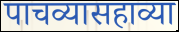
पाचव्यासहाव्या